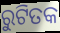
ରୁଟିତକ